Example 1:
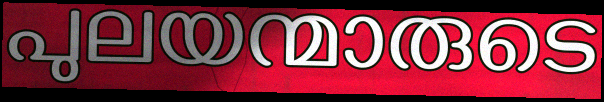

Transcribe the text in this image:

പുലയന്മാരുടെ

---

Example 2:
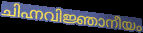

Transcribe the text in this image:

ചിഹ്നവിജ്ഞാനീയം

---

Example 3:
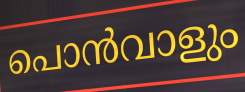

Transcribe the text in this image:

പൊൻവാളും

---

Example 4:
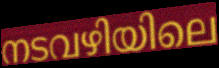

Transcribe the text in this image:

നടവഴിയിലെ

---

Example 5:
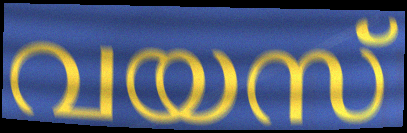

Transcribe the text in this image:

വയസ്